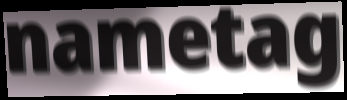
nametag